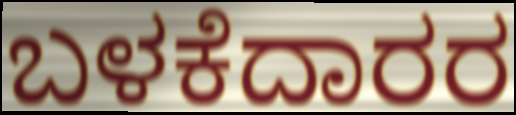
ಬಳಕೆದಾರರ